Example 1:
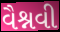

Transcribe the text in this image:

વૈશ્નવી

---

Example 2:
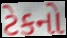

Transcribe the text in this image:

ટેકનો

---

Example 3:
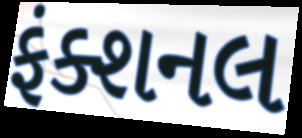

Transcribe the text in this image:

ફંક્શનલ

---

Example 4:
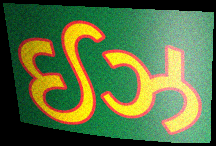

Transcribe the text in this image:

ઈઝ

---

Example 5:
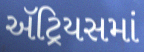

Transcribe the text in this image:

ઍટ્રિયસમાં